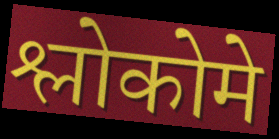
श्लोकोमे